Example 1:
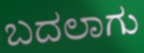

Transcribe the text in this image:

ಬದಲಾಗು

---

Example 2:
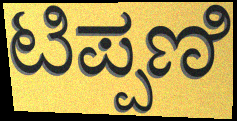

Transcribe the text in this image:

ಟಿಪ್ಪಣಿ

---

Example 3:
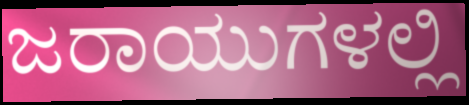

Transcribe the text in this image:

ಜರಾಯುಗಳಲ್ಲಿ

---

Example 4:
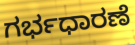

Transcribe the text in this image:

ಗರ್ಭಧಾರಣೆ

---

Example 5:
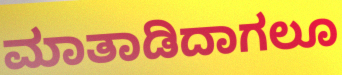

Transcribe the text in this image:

ಮಾತಾಡಿದಾಗಲೂ